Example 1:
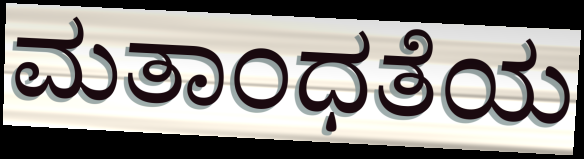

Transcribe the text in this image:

ಮತಾಂಧತೆಯ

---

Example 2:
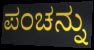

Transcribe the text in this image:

ಪಂಚನ್ನು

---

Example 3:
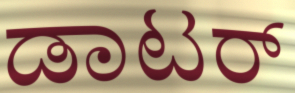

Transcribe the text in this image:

ಡಾಟರ್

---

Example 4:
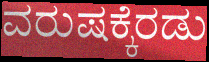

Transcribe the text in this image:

ವರುಷಕ್ಕೆರಡು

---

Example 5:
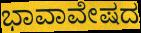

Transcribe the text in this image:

ಭಾವಾವೇಷದ